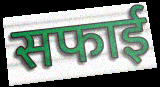
सफाई